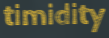
timidity